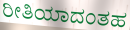
ರೀತಿಯಾದಂತಹ